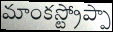
మాంకస్ట్రోప్పా